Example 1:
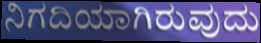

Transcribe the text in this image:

ನಿಗದಿಯಾಗಿರುವುದು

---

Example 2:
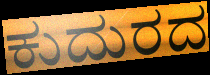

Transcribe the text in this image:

ಕುದುರದ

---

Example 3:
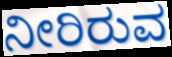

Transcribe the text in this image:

ನೀರಿರುವ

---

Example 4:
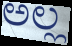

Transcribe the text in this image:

ಅಲ್ಲ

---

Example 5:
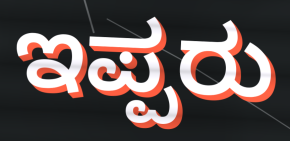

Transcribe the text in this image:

ಇಪ್ಪರು